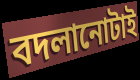
বদলানোটাই